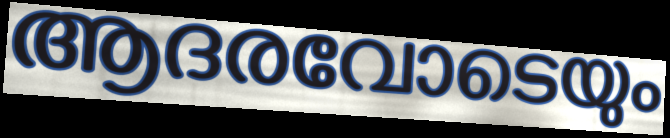
ആദരവോടെയും